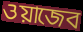
ওয়াজেব